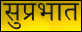
सुप्रभात